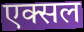
एक्सल